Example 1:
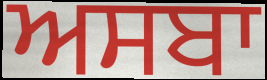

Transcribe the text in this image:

ਅਸਬਾ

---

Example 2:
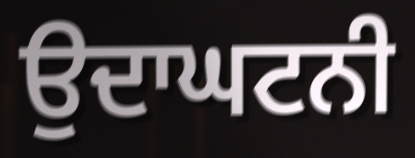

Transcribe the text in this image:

ਉਦਾਘਟਨੀ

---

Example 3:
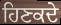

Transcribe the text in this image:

ਹਿਣਕਦੇ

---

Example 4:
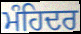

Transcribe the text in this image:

ਮੰਹਿਦਰ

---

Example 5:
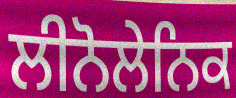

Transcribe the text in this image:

ਲੀਨੋਲੇਨਿਕ